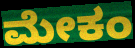
ಮೇಕಂ